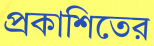
প্রকাশিতের